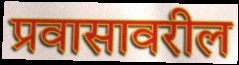
प्रवासावरील